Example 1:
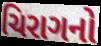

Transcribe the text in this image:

ચિરાગનો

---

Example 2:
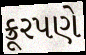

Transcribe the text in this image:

ક્રૂરપણે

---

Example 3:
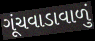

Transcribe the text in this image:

ગૂંચવાડાવાળું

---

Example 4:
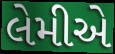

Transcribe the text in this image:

લેમીએ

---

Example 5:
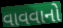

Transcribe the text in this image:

વાવવાનો